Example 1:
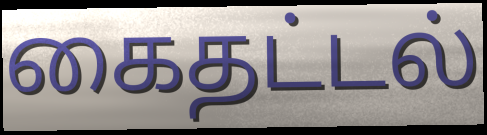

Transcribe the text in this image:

கைதட்டல்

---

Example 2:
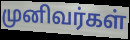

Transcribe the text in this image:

முனிவர்கள்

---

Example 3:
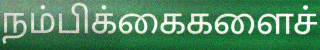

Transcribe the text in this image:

நம்பிக்கைகளைச்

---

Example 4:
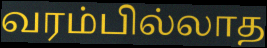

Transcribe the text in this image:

வரம்பில்லாத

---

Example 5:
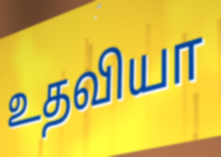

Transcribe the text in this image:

உதவியா